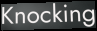
Knocking